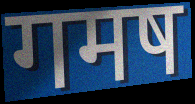
गमष